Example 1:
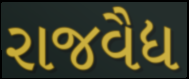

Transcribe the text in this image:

રાજવૈદ્ય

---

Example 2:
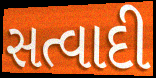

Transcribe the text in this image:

સત્વાદી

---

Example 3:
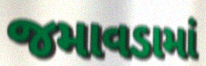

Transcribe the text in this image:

જમાવડામાં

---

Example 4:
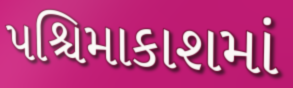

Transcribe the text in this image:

પશ્ચિમાકાશમાં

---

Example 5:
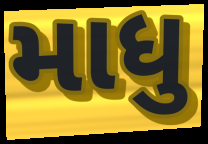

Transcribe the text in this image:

માધુ